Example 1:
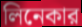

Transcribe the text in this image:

লিনেকার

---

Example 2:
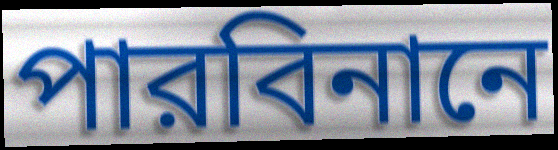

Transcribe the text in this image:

পারবিনানে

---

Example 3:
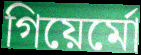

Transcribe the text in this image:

গিয়ের্মো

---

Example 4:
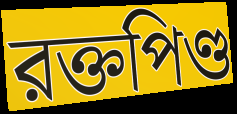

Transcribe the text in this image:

রক্তপিণ্ড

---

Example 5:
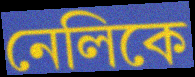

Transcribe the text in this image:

নেলিকে